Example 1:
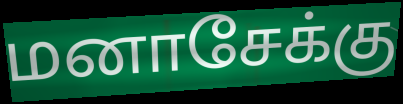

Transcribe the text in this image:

மனாசேக்கு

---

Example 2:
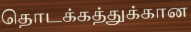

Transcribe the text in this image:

தொடக்கத்துக்கான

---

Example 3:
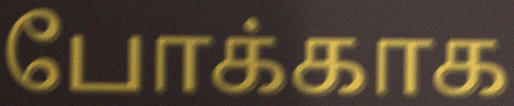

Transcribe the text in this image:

போக்காக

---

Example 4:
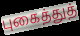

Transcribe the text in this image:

புகைத்துத்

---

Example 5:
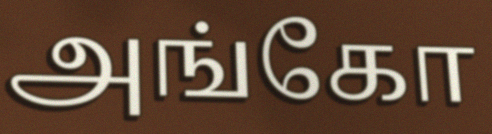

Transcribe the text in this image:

அங்கோ